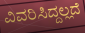
ವಿವರಿಸಿದ್ದಲ್ಲದೆ